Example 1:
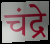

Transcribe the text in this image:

चंद्रे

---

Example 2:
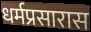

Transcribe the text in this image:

धर्मप्रसारास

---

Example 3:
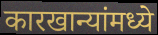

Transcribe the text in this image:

कारखान्यांमध्ये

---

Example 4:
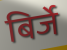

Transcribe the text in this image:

बिर्जे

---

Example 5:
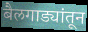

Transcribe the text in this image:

बैलगाड्यांतून